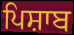
ਪਿਸ਼ਾਬ